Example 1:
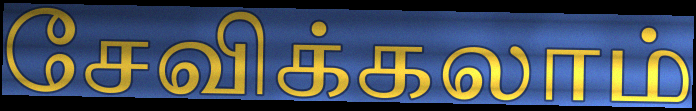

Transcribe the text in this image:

சேவிக்கலாம்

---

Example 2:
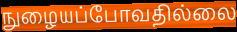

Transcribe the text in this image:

நுழையப்போவதில்லை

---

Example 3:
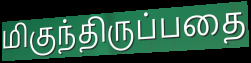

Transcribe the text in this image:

மிகுந்திருப்பதை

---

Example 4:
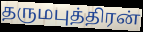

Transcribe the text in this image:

தருமபுத்திரன்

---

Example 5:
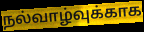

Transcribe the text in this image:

நல்வாழ்வுக்காக